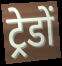
ट्रेडों